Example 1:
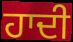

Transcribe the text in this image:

ਹਾਦੀ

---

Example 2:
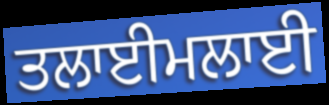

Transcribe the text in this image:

ਤਲਾਈਮਲਾਈ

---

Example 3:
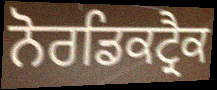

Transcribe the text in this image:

ਨੋਰਡਿਕਟ੍ਰੈਕ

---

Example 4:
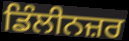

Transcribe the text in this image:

ਡਿੰਲੀਨਜ਼ਰ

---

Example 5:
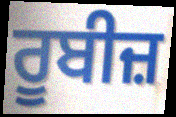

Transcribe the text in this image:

ਰੂਬੀਜ਼